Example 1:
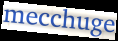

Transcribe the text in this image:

mecchuge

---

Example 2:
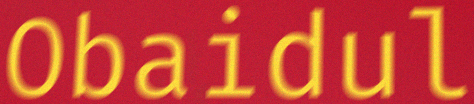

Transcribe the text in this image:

Obaidul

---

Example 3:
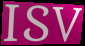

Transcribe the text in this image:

ISV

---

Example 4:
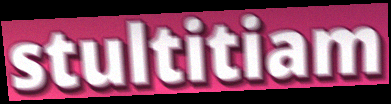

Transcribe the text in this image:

stultitiam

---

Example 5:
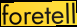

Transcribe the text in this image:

foretell